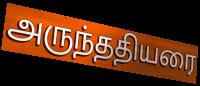
அருந்ததியரை